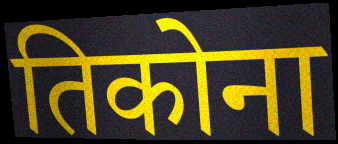
तिकोना